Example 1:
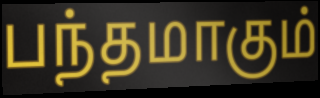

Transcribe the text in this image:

பந்தமாகும்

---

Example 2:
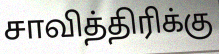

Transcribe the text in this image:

சாவித்திரிக்கு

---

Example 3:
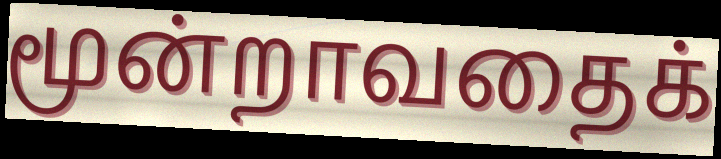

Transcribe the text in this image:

மூன்றாவதைக்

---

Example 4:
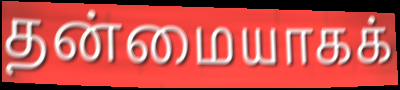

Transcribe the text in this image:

தன்மையாகக்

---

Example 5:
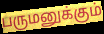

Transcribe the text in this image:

பருமனுக்கும்